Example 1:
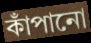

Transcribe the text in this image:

কাঁপানো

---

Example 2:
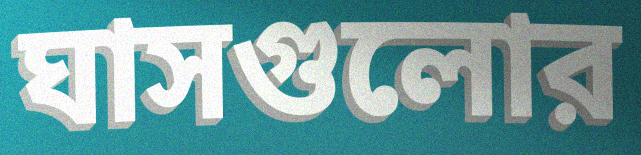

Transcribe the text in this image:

ঘাসগুলোর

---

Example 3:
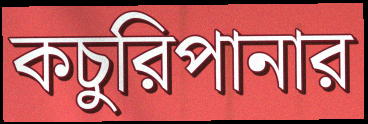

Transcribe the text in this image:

কচুরিপানার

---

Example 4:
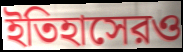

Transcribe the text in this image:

ইতিহাসেরও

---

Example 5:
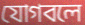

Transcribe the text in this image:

যোগবলে